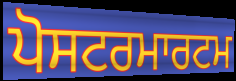
ਪੋਸਟਰਮਾਰਟਮ